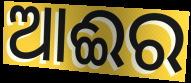
ଆଈର